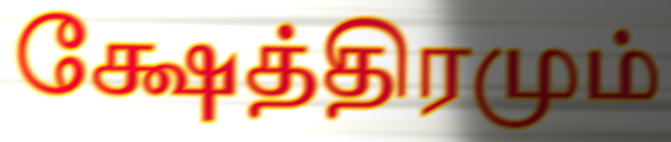
க்ஷேத்திரமும்